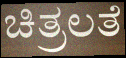
ಚಿತ್ರಲತೆ